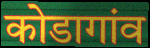
कोडागांव